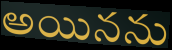
అయినను